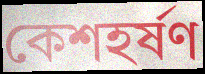
কেশহর্ষণ